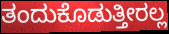
ತಂದುಕೊಡುತ್ತೀರಲ್ಲ